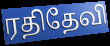
ரதிதேவி